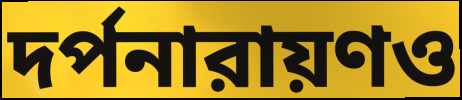
দর্পনারায়ণও